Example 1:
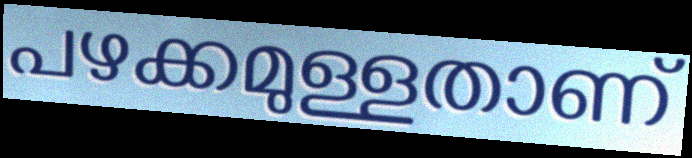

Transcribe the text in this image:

പഴക്കമുള്ളതാണ്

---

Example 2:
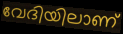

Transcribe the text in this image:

വേദിയിലാണ്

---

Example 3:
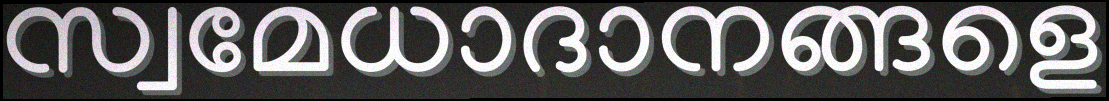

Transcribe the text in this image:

സ്വമേധാദാനങ്ങളെ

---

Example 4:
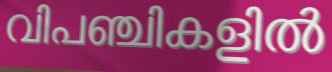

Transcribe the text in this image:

വിപഞ്ചികളിൽ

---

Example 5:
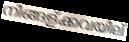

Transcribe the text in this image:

നിങ്ങള്ക്കവയില്